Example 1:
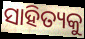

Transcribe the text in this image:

ସାହିତ୍ୟକୁ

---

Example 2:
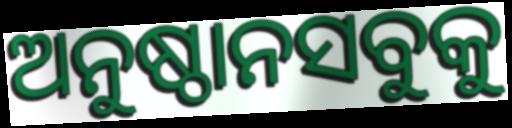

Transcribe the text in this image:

ଅନୁଷ୍ଠାନସବୁକୁ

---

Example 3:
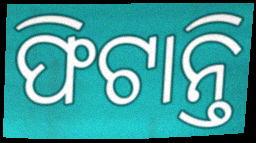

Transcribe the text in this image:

ଫିଟାନ୍ତି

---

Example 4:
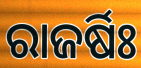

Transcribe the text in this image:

ରାଜର୍ଷିଃ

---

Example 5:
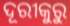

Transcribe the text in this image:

ଦୂରୀକୁରୁ